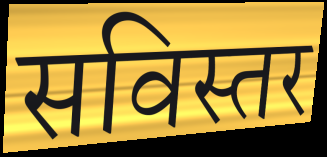
सविस्तर